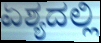
ಏಶ್ಯದಲ್ಲಿ